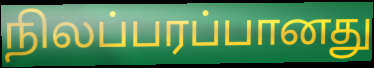
நிலப்பரப்பானது